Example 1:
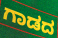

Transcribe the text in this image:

ಗಾಡದ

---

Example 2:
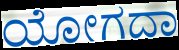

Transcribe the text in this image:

ಯೋಗದಾ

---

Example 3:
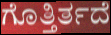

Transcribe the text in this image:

ಗೊತ್ತಿರ್ತದೆ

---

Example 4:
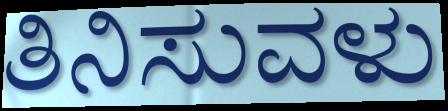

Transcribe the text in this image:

ತಿನಿಸುವಳು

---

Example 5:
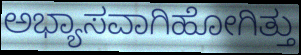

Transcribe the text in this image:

ಅಭ್ಯಾಸವಾಗಿಹೋಗಿತ್ತು